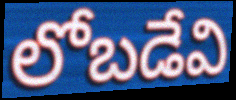
లోబడేవి